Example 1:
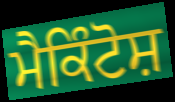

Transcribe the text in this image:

ਮੈਕਿੰਟੋਸ਼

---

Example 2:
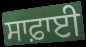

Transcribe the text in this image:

ਸਾਫ਼ਾਈ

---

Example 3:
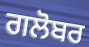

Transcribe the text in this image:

ਗਲੋਬਰ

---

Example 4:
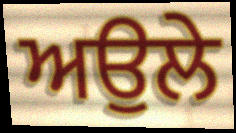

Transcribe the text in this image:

ਅਉਲੇ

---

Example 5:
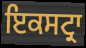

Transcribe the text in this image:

ਇਕਸਟ੍ਰਾ